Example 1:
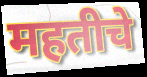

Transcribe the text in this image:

महतीचे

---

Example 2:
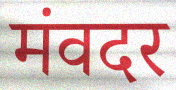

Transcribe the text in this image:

मंवदर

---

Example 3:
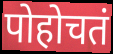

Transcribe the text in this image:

पोहोचतं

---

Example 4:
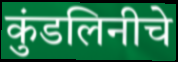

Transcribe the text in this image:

कुंडलिनीचे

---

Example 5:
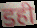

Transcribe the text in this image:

डही